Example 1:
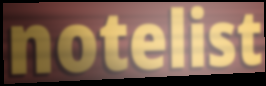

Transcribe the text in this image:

notelist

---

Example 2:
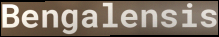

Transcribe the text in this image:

Bengalensis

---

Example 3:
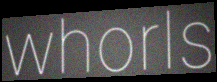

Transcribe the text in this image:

whorls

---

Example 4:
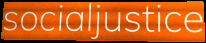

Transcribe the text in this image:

socialjustice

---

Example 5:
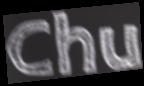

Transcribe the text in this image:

Chu